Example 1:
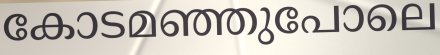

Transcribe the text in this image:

കോടമഞ്ഞുപോലെ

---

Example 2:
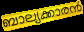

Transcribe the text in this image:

ബാല്യക്കാരൻ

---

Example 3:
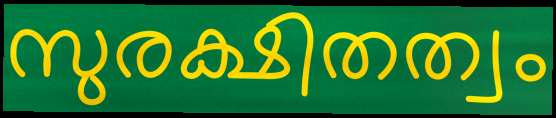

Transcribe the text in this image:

സുരക്ഷിതത്വം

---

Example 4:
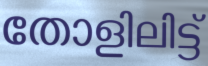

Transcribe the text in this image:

തോളിലിട്ട്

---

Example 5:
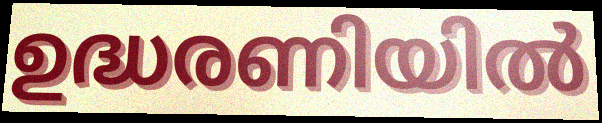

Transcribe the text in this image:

ഉദ്ധരണിയിൽ